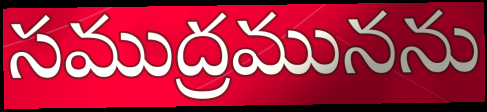
సముద్రమునను